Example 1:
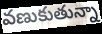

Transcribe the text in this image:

వణుకుతున్నా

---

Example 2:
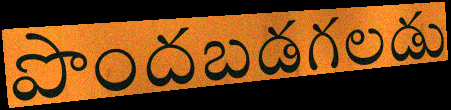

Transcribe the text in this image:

పొందబడగలడు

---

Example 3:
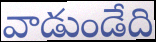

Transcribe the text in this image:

వాడుండేది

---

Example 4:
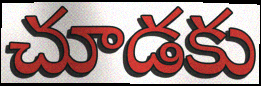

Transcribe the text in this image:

చూడకు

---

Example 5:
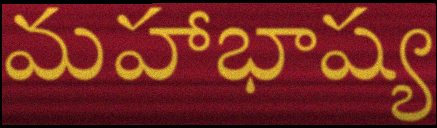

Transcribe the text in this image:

మహాభాష్య